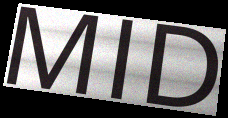
MID